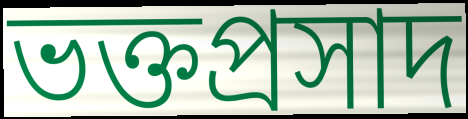
ভক্তপ্রসাদ